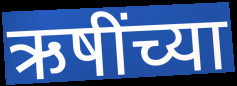
ऋषींच्या